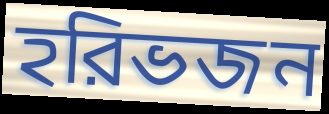
হরিভজন